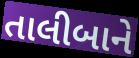
તાલીબાને